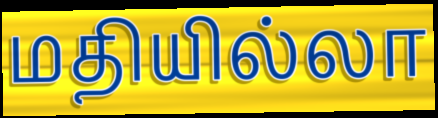
மதியில்லா